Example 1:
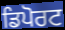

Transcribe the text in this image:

ਡਿਪੋਰਟ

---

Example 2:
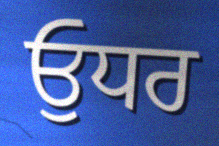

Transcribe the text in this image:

ਓੁਧਰ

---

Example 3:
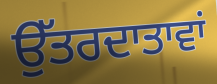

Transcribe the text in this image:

ਉੱਤਰਦਾਤਾਵਾਂ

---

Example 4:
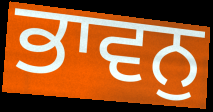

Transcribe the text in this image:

ਭਾਵਨੁ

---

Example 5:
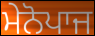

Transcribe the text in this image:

ਮੇਨੋਪਾਜ